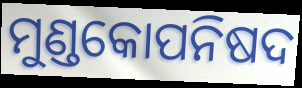
ମୁଣ୍ଡକୋପନିଷଦ